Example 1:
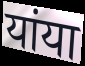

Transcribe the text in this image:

यांया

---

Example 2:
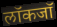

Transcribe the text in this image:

लॉकजॉ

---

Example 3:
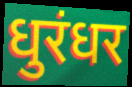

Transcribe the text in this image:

धुरंधर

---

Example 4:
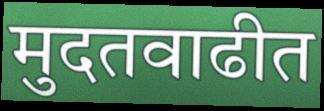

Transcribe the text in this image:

मुदतवाढीत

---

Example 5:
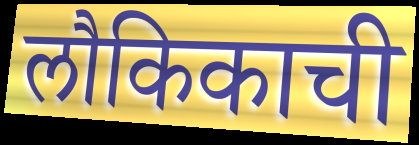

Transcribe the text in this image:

लौकिकाची